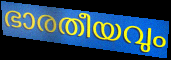
ഭാരതീയവും